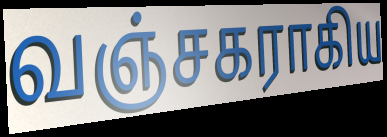
வஞ்சகராகிய